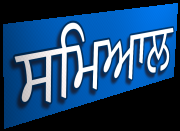
ਸਮਿਆਲ